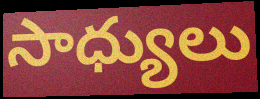
సాధ్యులు